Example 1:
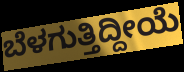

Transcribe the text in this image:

ಬೆಳಗುತ್ತಿದ್ದೀಯೆ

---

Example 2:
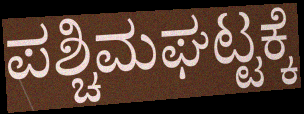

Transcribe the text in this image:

ಪಶ್ಚಿಮಘಟ್ಟಕ್ಕೆ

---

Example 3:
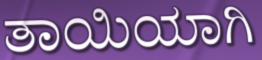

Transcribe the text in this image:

ತಾಯಿಯಾಗಿ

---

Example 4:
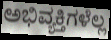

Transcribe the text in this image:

ಅಭಿವ್ಯಕ್ತಿಗಳೆಲ್ಲ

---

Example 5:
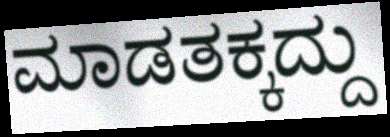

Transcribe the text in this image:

ಮಾಡತಕ್ಕದ್ದು